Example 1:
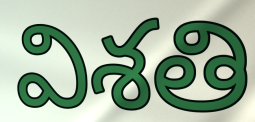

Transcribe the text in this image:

విశతి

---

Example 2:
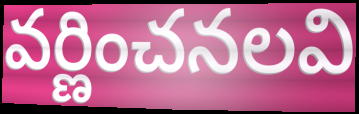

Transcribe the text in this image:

వర్ణించనలవి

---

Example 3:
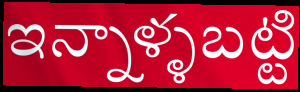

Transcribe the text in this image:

ఇన్నాళ్ళబట్టి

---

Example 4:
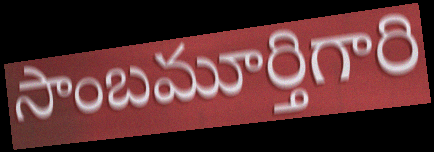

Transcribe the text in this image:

సాంబమూర్తిగారి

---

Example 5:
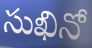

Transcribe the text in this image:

సుఖినో